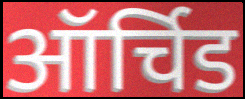
ऑर्चिड